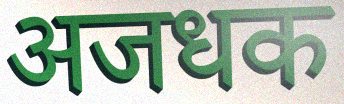
अजधक